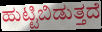
ಹುಟ್ಟಿಬಿಡುತ್ತದೆ